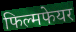
फिल्मफेयर